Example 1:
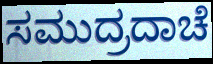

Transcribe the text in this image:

ಸಮುದ್ರದಾಚೆ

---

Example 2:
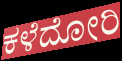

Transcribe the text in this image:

ಕಳೆದೋರಿ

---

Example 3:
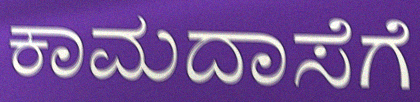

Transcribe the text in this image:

ಕಾಮದಾಸೆಗೆ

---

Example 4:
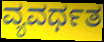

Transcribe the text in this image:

ವ್ಯವರ್ಧತ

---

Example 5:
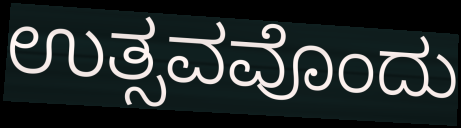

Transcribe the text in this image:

ಉತ್ಸವವೊಂದು